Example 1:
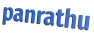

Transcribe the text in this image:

panrathu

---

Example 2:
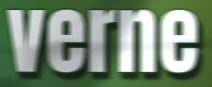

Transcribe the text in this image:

verne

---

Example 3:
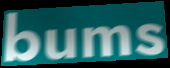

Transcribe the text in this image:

bums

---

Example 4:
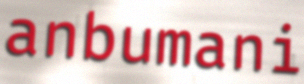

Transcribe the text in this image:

anbumani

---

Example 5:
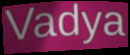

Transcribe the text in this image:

Vadya